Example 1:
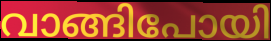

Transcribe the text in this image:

വാങ്ങിപോയി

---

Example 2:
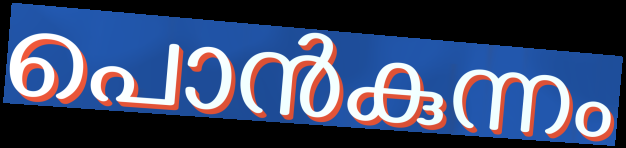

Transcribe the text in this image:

പൊൻകുന്നം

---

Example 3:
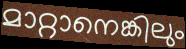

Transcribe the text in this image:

മാറ്റാനെങ്കിലും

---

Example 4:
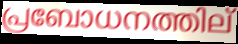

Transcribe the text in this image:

പ്രബോധനത്തില്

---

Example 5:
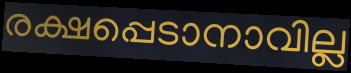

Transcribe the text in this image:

രക്ഷപ്പെടാനാവില്ല